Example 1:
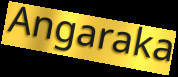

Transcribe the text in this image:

Angaraka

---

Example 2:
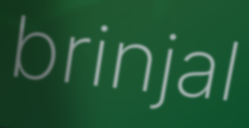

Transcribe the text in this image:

brinjal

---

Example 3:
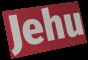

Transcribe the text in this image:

Jehu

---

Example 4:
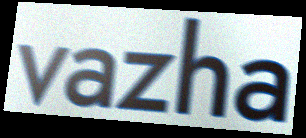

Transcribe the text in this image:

vazha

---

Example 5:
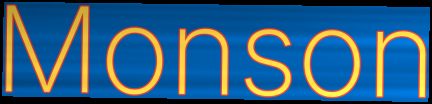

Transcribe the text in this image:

Monson